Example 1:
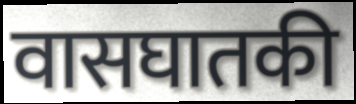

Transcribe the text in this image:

वासघातकी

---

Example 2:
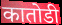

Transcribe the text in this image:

कातोडी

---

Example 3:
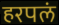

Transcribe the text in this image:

हरपलं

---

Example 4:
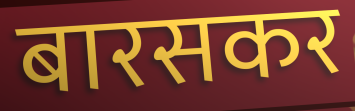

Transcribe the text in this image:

बारसकर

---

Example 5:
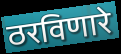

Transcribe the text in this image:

ठरविणारे